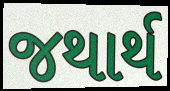
જથાર્થ